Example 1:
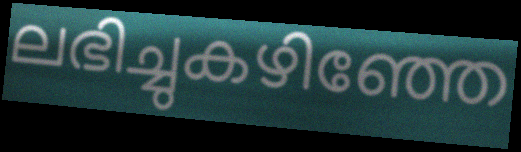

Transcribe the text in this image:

ലഭിച്ചുകഴിഞ്ഞേ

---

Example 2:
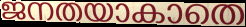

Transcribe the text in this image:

ജനതയാകാതെ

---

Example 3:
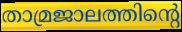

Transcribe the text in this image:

താമ്രജാലത്തിന്റെ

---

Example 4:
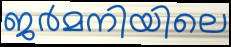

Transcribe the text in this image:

ജർമനിയിലെ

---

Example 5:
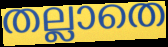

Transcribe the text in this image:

തല്ലാതെ